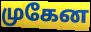
முகேன